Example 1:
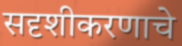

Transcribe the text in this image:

सदृशीकरणाचे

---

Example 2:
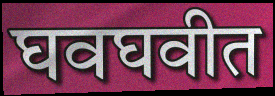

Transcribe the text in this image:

घवघवीत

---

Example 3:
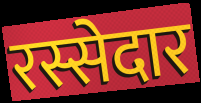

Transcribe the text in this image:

रस्सेदार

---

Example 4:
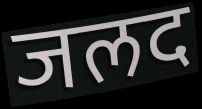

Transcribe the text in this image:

जलद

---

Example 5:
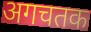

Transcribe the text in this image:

अगचतक